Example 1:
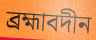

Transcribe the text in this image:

ব্ৰহ্মাবদীন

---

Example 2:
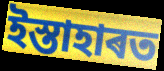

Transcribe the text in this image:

ইস্তাহাৰত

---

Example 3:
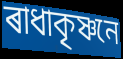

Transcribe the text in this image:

ৰাধাকৃষ্ণনে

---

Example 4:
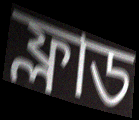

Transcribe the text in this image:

ফ্লাড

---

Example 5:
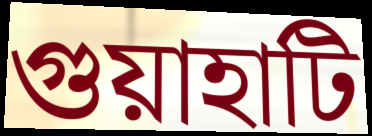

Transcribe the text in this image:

গুয়াহাটি